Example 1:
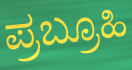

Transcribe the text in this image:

ಪ್ರಬ್ರೂಹಿ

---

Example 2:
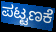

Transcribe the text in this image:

ಪಟ್ಟಣಕೆ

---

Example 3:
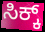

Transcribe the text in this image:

ಸಿಕ್ಕ್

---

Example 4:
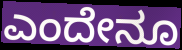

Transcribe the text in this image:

ಎಂದೇನೂ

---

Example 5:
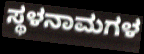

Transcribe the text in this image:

ಸ್ಥಳನಾಮಗಳ